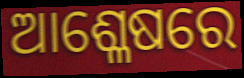
ଆଶ୍ଳେଷରେ